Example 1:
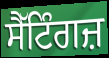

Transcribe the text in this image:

ਸੈੱਟਿੰਗਜ਼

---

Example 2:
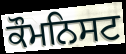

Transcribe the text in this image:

ਕੌਮਨਿਸਟ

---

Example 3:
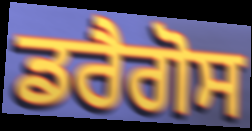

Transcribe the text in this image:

ਡਰੈਗੋਸ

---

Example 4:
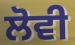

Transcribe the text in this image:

ਲੋਵੀ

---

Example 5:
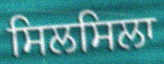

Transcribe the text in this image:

ਸਿਲਸਿਲਾ